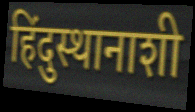
हिंदुस्थानाशी